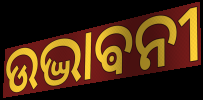
ଉଦ୍ଭାଵନୀ